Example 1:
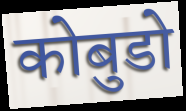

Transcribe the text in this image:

कोबुडो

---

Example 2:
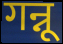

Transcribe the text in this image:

गन्नू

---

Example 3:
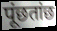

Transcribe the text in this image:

पूंछतांछ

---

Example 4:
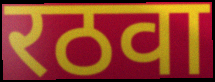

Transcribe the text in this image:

रठवा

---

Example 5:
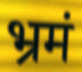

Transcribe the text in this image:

भ्रमं